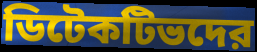
ডিটেকটিভদের